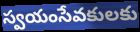
స్వయంసేవకులకు